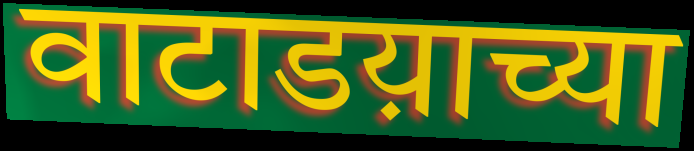
वाटाडय़ाच्या